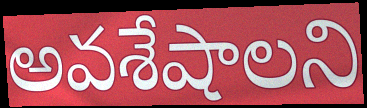
అవశేషాలని